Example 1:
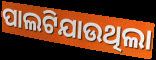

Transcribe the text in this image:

ପାଲଟିଯାଉଥିଲା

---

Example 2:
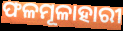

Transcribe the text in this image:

ଫଳମୂଳାହାରୀ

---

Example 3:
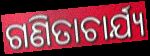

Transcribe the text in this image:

ଗଣିତାଚାର୍ଯ୍ୟ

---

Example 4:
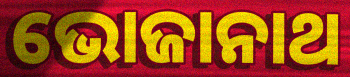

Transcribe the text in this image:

ଭୋଜାନାଥ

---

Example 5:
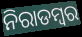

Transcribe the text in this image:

ନିରାଡମ୍ଵର